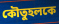
কৌতুহলকে